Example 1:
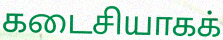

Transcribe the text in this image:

கடைசியாகக்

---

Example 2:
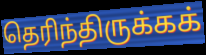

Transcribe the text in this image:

தெரிந்திருக்கக்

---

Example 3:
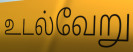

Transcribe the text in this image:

உடல்வேறு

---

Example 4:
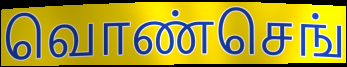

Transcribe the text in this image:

வொண்செங்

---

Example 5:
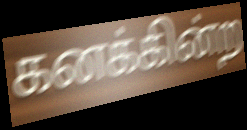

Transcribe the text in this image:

கனக்கின்ற